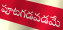
పూటగడవడమే